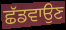
ਛੱਡਵਾਉਣ